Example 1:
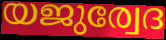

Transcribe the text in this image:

യജുര്വേദ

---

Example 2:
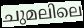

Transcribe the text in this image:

ചുമലിലെ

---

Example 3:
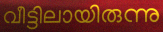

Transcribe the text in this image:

വീട്ടിലായിരുന്നു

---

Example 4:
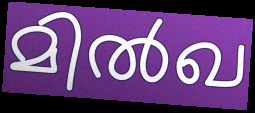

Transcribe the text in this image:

മിൽഖ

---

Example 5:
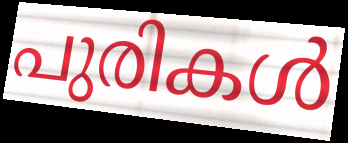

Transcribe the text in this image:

പുരികൾ